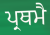
ਪ੍ਰਥਮੈ